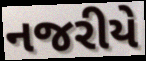
નજરીયે